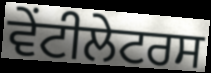
ਵੇਂਟੀਲੇਟਰਸ